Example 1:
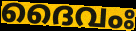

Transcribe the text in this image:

ദൈവംഃ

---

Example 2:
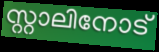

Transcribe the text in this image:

സ്റ്റാലിനോട്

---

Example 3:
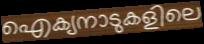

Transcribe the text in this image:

ഐക്യനാടുകളിലെ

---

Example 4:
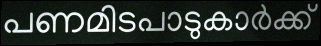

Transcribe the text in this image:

പണമിടപാടുകാർക്ക്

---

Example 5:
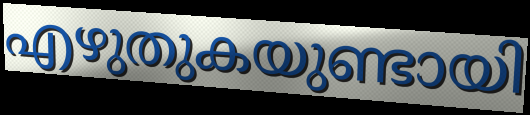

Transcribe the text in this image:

എഴുതുകയുണ്ടായി